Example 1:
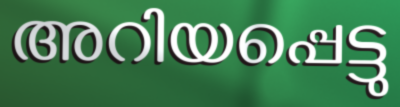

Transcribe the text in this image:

അറിയപ്പെട്ടു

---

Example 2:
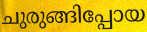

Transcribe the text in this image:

ചുരുങ്ങിപ്പോയ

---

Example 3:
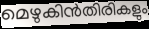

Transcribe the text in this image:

മെഴുകിൻതിരികളും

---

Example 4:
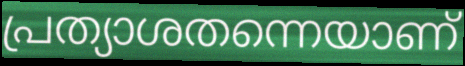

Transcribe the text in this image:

പ്രത്യാശതന്നെയാണ്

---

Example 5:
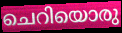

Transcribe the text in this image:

ചെറിയൊരു